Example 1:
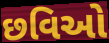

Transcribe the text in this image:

છવિઓ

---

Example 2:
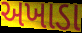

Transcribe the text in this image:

અખાડા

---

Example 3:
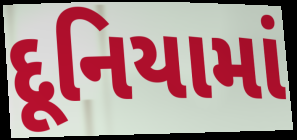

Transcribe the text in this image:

દૂનિયામાં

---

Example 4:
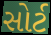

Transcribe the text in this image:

સોર્ટ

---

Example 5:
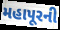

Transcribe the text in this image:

મહાપૂરની